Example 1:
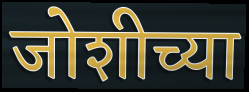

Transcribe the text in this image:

जोशीच्या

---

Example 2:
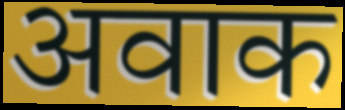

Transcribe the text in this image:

अवाक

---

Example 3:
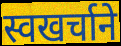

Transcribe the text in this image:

स्वखर्चाने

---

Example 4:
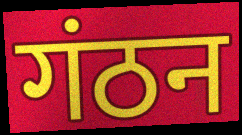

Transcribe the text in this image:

गंठन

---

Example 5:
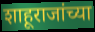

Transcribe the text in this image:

शाहूराजांच्या